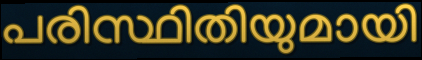
പരിസ്ഥിതിയുമായി